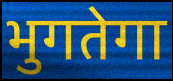
भुगतेगा